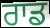
ਰਾਡ